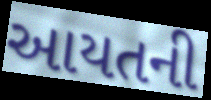
આયતની